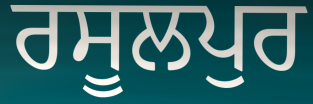
ਰਸੂਲਪੁਰ